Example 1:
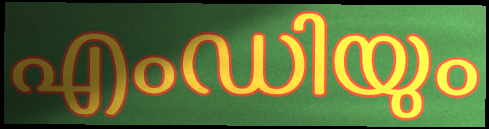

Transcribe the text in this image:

എംഡിയും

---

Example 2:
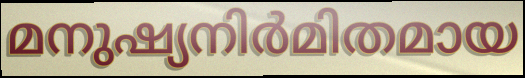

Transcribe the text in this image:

മനുഷ്യനിർമിതമായ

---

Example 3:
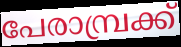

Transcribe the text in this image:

പേരാമ്പ്രക്ക്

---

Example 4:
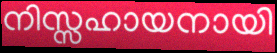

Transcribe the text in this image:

നിസ്സഹായനായി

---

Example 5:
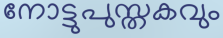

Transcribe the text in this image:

നോട്ടുപുസ്തകവും